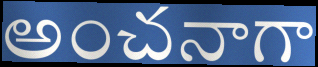
అంచనాగా